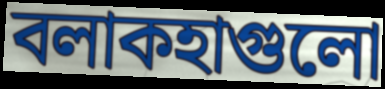
বলাকহাগুলো